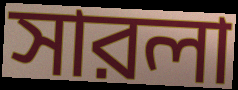
সারলা